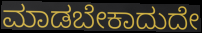
ಮಾಡಬೇಕಾದುದೇ